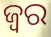
ଜ୍ବର